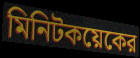
মিনিটকয়েকের